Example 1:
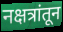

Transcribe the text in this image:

नक्षत्रांतून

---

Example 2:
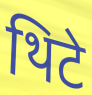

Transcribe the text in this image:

थिटे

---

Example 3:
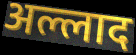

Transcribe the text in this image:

अल्लाद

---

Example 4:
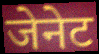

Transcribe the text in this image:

जेनेट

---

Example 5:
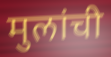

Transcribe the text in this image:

मुलांची